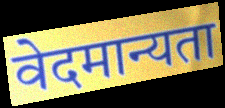
वेदमान्यता